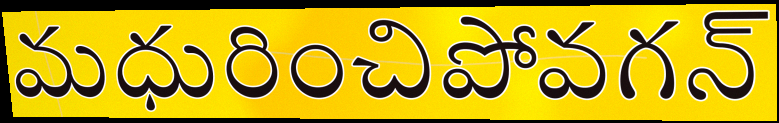
మధురించిపోవగన్